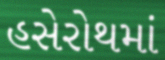
હસેરોથમાં